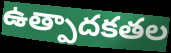
ఉత్పాదకతల